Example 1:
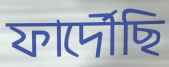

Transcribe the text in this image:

ফাৰ্দৌছি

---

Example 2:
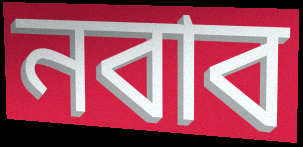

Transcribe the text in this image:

নবাব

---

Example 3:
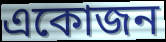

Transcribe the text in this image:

একোজন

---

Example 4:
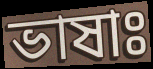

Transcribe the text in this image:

ভাষাঃ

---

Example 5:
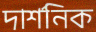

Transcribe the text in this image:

দাৰ্শনিক